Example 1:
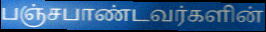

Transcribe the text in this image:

பஞ்சபாண்டவர்களின்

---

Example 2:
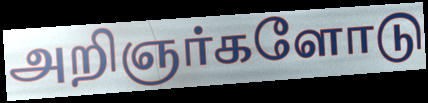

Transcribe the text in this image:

அறிஞர்களோடு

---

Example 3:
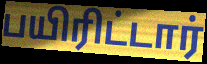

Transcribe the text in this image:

பயிரிட்டார்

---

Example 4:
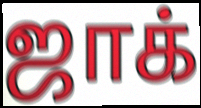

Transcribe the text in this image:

ஜாக்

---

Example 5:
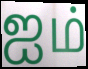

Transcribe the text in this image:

ஐம்